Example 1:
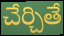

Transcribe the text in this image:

చేర్చితే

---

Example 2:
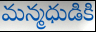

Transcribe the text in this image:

మన్మధుడికి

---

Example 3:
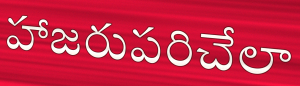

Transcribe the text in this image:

హాజరుపరిచేలా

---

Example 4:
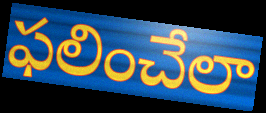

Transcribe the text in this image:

ఫలించేలా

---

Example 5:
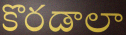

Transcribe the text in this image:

కొరడాలా